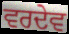
ਵਰਦੇਵ